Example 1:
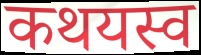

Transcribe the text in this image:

कथयस्व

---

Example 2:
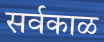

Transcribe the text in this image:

सर्वकाळ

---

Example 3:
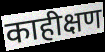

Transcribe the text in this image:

काहीक्षण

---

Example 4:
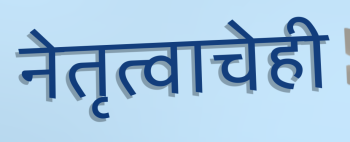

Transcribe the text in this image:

नेतृत्वाचेही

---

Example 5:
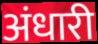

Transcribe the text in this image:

अंधारी